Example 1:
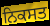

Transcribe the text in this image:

ਨਿਕਸਤ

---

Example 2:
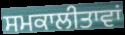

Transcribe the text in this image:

ਸਮਕਾਲੀਤਾਵਾਂ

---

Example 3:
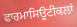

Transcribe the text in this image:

ਫਾਰਮਾਸਿਊਟੀਕਲਾਂ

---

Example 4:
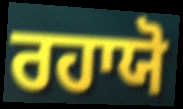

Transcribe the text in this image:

ਰਹਾਯੋ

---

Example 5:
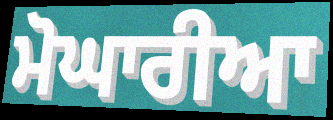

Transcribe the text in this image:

ਮੋਘਾਰੀਆ